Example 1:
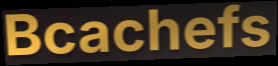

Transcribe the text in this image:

Bcachefs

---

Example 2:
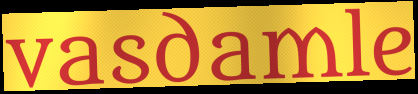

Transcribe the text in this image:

vasdamle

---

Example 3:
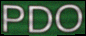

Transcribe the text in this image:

PDO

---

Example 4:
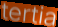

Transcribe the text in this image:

tertia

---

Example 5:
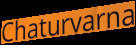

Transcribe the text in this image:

Chaturvarna